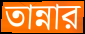
তান্নার